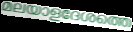
മലയാളദേശത്തെ